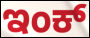
ಇಂಕ್